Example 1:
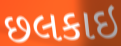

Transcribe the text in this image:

છલકાઇ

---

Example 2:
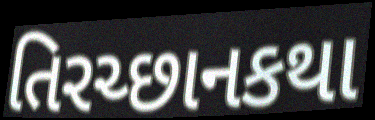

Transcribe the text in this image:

તિરચ્છાનકથા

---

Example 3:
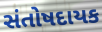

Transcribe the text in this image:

સંતોષદાયક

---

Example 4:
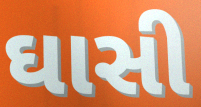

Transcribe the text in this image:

ઘાસી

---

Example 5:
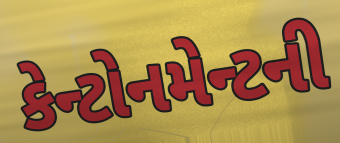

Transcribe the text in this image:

કેન્ટોનમેન્ટની